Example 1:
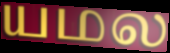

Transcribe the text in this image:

யமல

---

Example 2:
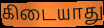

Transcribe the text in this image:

கிடையாது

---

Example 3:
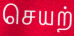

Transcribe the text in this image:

செயற்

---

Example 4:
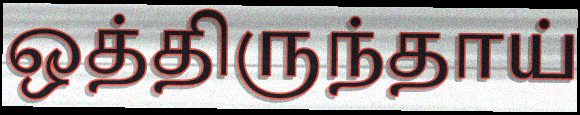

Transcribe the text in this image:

ஒத்திருந்தாய்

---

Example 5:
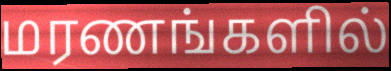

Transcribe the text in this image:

மரணங்களில்